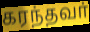
கரந்தவர்